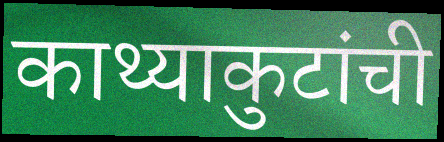
काथ्याकुटांची